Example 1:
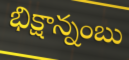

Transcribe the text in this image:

భిక్షాన్నంబు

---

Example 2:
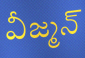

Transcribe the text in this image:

వీజ్మన్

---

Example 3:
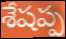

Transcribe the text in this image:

శేషప్ప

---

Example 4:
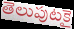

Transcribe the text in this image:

తెలుపుటకై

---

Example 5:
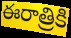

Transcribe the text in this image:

ఈరాత్రికి